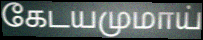
கேடயமுமாய்